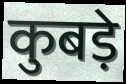
कुबड़े